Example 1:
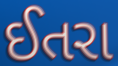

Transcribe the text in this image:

ઈતરા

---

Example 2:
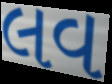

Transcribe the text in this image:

લવ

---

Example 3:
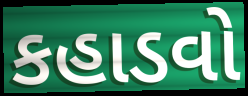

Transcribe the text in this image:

કહાડવો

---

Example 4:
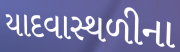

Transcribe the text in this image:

યાદવાસ્થળીના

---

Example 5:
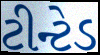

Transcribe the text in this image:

ટીન્ટેડ